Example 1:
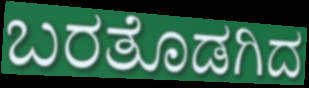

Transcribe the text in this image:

ಬರತೊಡಗಿದ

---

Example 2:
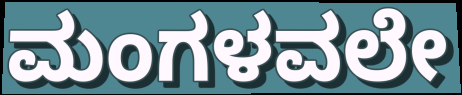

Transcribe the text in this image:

ಮಂಗಳವಲೇ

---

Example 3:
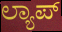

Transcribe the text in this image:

ಲ್ಯಾಪ್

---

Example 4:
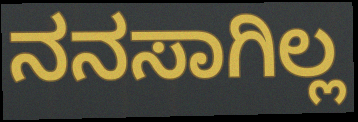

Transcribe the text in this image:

ನನಸಾಗಿಲ್ಲ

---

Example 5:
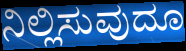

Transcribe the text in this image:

ನಿಲ್ಲಿಸುವುದೂ